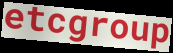
etcgroup